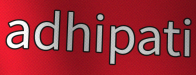
adhipati